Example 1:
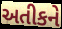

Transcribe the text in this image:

અતીકને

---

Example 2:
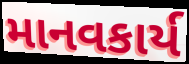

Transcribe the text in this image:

માનવકાર્ય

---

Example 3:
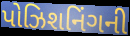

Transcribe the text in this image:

પોઝિશનિંગની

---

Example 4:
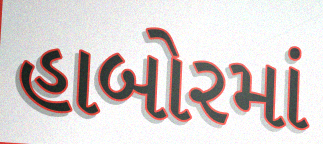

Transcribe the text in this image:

હાબોરમાં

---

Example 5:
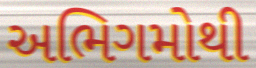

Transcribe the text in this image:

અભિગમોથી